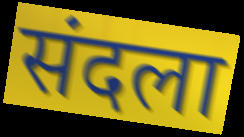
संदला